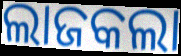
ଲାଜକଲା